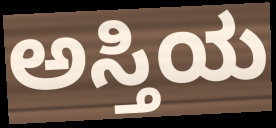
ಅಸ್ತಿಯ